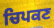
ਚਿਪਕਣ